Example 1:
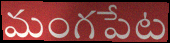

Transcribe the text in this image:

మంగపేట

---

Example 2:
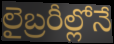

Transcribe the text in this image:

లైబ్రరీల్లోనే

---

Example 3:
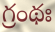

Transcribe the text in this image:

గ్రంథః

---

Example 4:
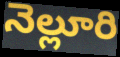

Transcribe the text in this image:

నెల్లూరి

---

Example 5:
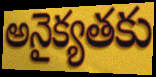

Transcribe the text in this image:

అనైక్యతకు